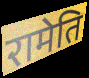
रामेति